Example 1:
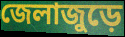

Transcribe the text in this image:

জেলাজুড়ে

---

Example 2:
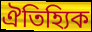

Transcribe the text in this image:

ঐতিহ্যিক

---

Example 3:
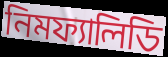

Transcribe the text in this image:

নিমফ্যালিডি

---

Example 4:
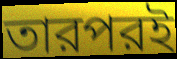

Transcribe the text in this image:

তারপরই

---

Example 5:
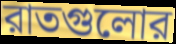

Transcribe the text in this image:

রাতগুলোর